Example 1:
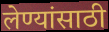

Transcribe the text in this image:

लेण्यांसाठी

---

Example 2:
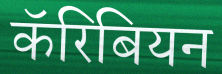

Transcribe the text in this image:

कॅरिबियन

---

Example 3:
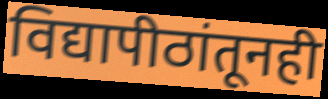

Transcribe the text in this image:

विद्यापीठांतूनही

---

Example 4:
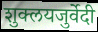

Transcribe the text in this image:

शुक्लयजुर्वेदी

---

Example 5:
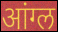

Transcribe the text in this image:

आंग्ल